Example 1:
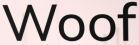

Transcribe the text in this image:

Woof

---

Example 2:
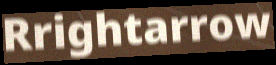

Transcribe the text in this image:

Rrightarrow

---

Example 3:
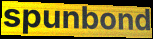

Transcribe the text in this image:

spunbond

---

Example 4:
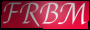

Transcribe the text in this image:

FRBM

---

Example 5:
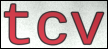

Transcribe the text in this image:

tcv